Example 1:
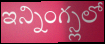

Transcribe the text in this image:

ఇన్నింగ్స్లలో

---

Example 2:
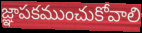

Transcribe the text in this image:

జ్ఞాపకముంచుకోవాలి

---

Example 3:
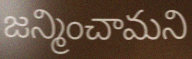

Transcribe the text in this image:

జన్మించామని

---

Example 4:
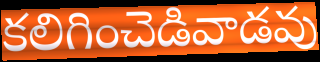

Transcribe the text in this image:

కలిగించెడివాడవు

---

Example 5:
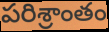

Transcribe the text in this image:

పరిశ్రాంతం